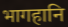
भागहानि